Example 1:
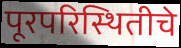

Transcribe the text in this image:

पूरपरिस्थितीचे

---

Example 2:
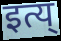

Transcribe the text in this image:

इत्य्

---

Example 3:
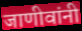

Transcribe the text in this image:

जाणीवांनी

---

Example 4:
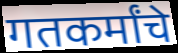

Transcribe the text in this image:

गतकर्मांचे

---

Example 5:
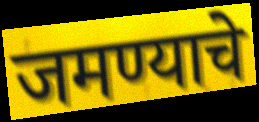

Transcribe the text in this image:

जमण्याचे